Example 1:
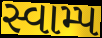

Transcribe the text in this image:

સ્વામ્પ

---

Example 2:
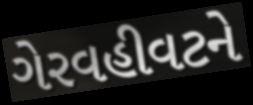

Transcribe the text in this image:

ગેરવહીવટને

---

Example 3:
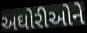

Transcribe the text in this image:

અઘોરીઓને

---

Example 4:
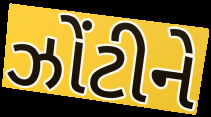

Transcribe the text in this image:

ઝોંટીને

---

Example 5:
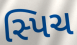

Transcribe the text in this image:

સ્પિચ